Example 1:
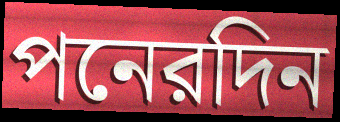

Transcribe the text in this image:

পনেরদিন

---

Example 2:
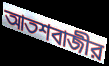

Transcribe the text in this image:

আতশবাজীর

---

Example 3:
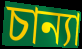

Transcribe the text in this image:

চান্যা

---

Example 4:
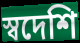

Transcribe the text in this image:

স্বদেশি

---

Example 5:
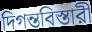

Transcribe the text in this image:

দিগন্তবিস্তারী